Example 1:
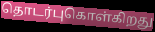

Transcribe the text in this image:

தொடர்புகொள்கிறது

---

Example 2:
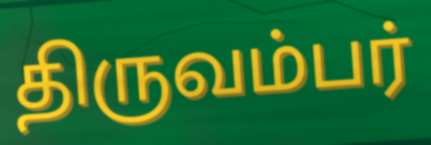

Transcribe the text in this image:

திருவம்பர்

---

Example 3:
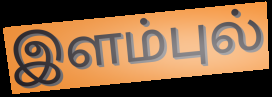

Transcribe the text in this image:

இளம்புல்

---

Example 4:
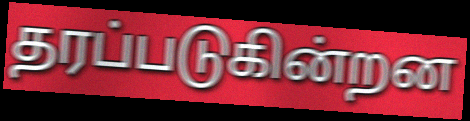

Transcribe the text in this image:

தரப்படுகின்றன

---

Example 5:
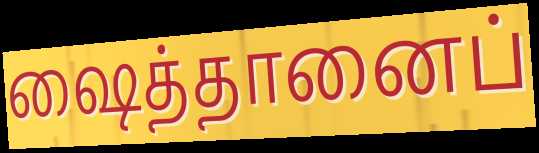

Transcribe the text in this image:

ஷைத்தானைப்